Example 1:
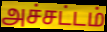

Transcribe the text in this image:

அச்சட்டம்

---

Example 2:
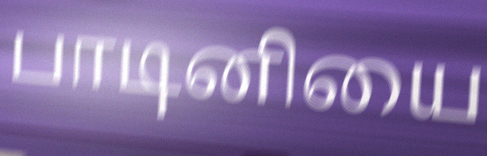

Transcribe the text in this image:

பாடினியை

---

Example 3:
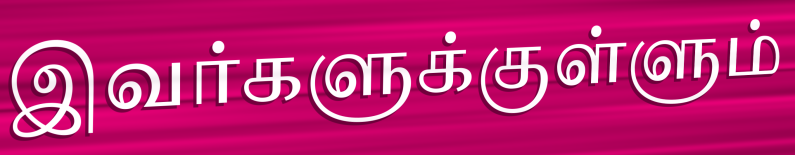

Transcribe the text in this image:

இவர்களுக்குள்ளும்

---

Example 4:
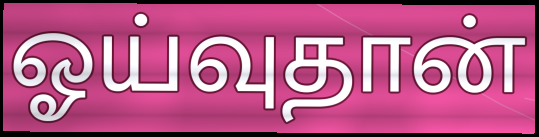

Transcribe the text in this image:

ஓய்வுதான்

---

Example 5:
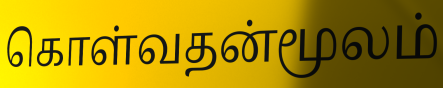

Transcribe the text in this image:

கொள்வதன்மூலம்